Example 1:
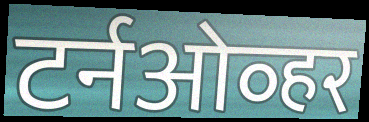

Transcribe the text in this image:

टर्नओव्हर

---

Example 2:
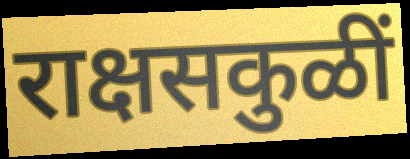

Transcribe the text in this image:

राक्षसकुळीं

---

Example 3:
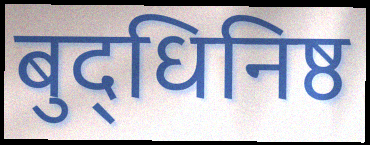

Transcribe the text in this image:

बुद्धिनिष्ठ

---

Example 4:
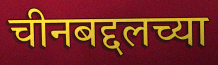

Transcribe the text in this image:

चीनबद्दलच्या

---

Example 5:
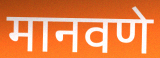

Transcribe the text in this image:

मानवणे